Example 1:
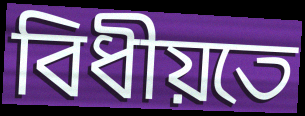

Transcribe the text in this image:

বিধীয়তে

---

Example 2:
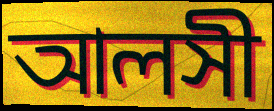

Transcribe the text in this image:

আলসী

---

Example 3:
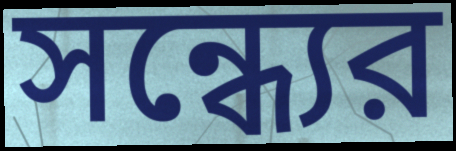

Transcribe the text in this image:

সন্ধ্যের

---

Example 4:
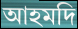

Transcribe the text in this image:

আহমদি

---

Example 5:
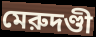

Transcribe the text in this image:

মেরুদণ্ডী